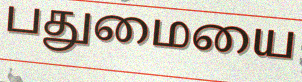
பதுமையை